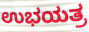
ಉಭಯತ್ರ